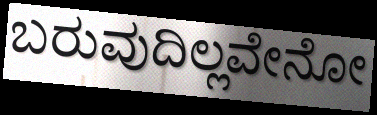
ಬರುವುದಿಲ್ಲವೇನೋ